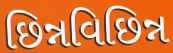
છિન્નવિછિન્ન